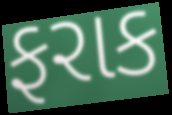
ફરાક